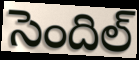
సెందిల్